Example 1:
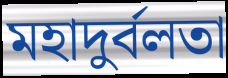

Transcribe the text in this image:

মহাদুর্বলতা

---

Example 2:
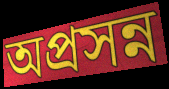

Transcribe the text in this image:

অপ্রসন্ন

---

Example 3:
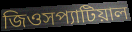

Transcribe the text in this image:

জিওসপ্যাটিয়াল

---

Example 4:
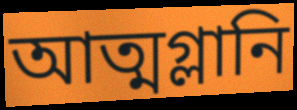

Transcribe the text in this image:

আত্মগ্লানি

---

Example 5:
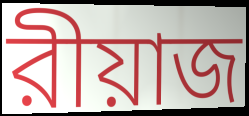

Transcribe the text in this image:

রীয়াজ